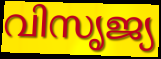
വിസൃജ്യ